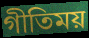
গীতিময়